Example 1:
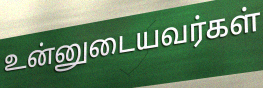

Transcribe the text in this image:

உன்னுடையவர்கள்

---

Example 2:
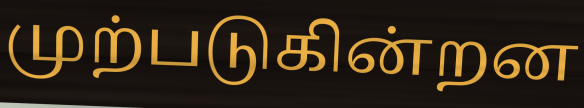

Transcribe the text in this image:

முற்படுகின்றன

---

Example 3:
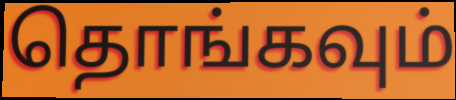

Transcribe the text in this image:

தொங்கவும்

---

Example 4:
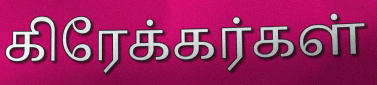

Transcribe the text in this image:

கிரேக்கர்கள்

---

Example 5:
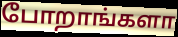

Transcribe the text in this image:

போறாங்களா